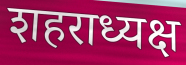
शहराध्यक्ष